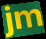
jm